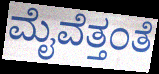
ಮೈವೆತ್ತಂತೆ